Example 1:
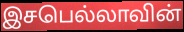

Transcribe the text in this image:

இசபெல்லாவின்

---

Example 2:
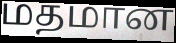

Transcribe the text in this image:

மதமான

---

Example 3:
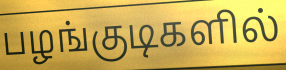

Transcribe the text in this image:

பழங்குடிகளில்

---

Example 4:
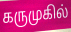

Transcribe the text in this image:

கருமுகில்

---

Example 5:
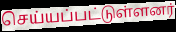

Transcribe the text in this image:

செய்யப்பட்டுள்ளனர்